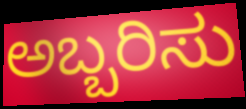
ಅಬ್ಬರಿಸು